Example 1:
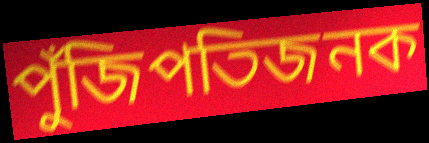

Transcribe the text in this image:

পুঁজিপতিজনক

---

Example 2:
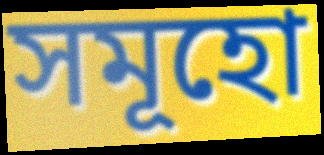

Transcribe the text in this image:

সমূহো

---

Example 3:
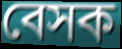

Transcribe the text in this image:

বেসক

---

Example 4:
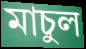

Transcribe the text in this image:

মাচুল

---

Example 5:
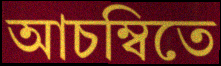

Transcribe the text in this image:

আচম্বিতে